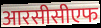
आरसीसीएफ